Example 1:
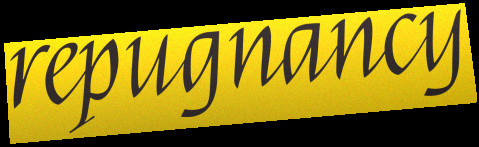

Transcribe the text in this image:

repugnancy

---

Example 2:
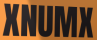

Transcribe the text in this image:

XNUMX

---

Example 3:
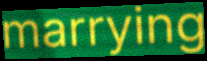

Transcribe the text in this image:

marrying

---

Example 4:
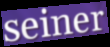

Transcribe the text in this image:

seiner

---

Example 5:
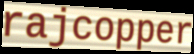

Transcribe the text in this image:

rajcopper